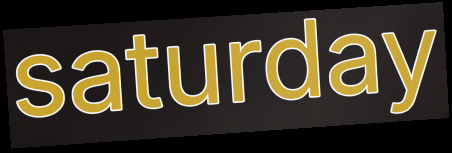
saturday